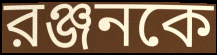
রঞ্জনকে